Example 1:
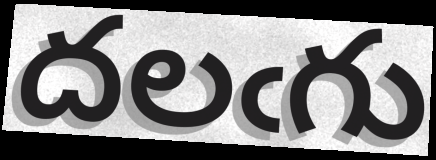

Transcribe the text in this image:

దలఁగు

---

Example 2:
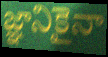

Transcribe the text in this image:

జ్ఞానికైనా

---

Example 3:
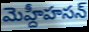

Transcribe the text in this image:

మెహ్దీహసన్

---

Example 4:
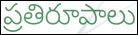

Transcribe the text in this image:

ప్రతిరూపాలు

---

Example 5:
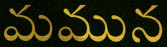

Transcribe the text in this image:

మమున